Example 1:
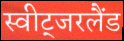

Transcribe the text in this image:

स्वीट्जरलैंड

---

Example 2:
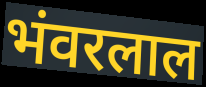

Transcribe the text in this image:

भंवरलाल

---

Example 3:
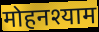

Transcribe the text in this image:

मोहनश्याम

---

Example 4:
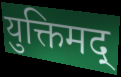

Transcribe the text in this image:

युक्तिमद्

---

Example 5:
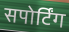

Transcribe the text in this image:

सपोर्टिंग